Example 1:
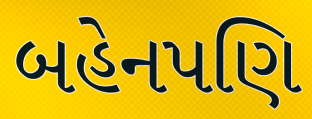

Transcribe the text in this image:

બહેનપણિ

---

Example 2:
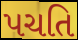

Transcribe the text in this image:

પચતિ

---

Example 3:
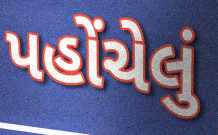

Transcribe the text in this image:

પહોંચેલું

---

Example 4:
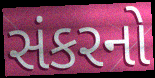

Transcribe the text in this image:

સંકરનો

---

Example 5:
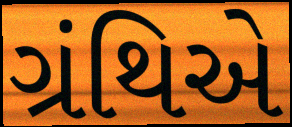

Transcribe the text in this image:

ગ્રંથિએ